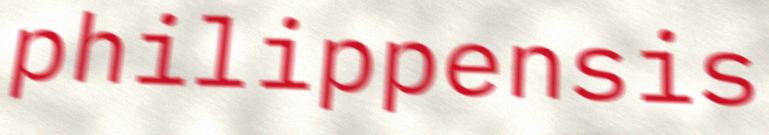
philippensis